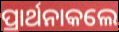
ପ୍ରାର୍ଥନାକଲେ